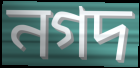
নগদ